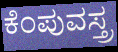
ಕೆಂಪುವಸ್ತ್ರ